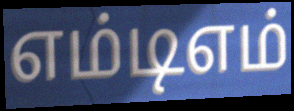
எம்டிஎம்